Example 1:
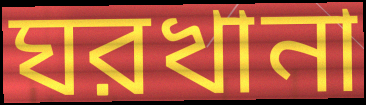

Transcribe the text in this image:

ঘরখানা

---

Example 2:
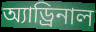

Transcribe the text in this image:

অ্যাড্রিনাল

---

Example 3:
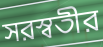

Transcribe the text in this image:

সরস্বতীর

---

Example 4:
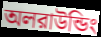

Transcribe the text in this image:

অলরাউন্ডিং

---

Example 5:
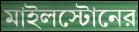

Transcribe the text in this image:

মাইলস্টোনের